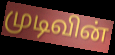
முடிவின்